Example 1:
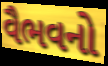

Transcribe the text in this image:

વૈભવનો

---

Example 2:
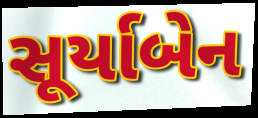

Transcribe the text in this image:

સૂર્યાબેન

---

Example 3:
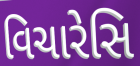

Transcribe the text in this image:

વિચારેસિ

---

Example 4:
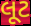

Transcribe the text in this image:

લૂટ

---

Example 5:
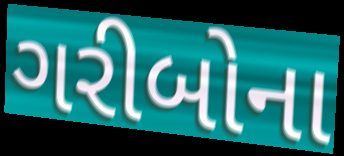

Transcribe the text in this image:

ગરીબોના